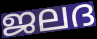
ജലദ